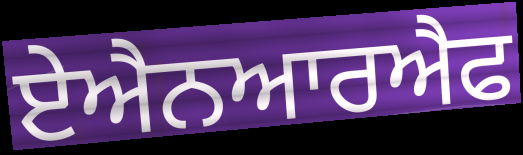
ਏਐਨਆਰਐਫ